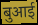
बुआई